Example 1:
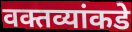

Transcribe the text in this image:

वक्तव्यांकडे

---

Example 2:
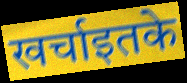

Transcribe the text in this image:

खर्चाइतके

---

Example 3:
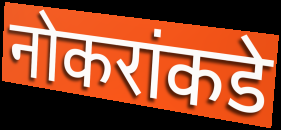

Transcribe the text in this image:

नोकरांकडे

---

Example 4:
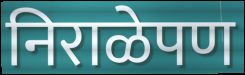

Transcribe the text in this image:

निराळेपण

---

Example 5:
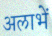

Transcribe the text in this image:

अलाभें